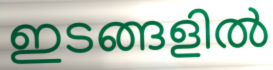
ഇടങ്ങളിൽ